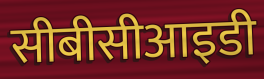
सीबीसीआइडी